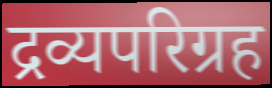
द्रव्यपरिग्रह